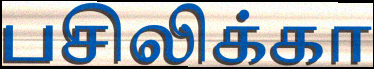
பசிலிக்கா